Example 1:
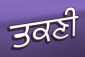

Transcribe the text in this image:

ਤਕਣੀ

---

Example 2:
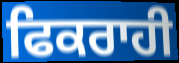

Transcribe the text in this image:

ਫਿਕਰਾਹੀ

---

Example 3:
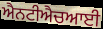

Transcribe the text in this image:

ਐਨਟੀਐਚਆਈ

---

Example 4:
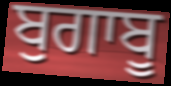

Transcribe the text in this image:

ਬੁਗਾਬੂ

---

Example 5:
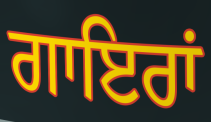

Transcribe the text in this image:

ਗਾਇਰਾਂ